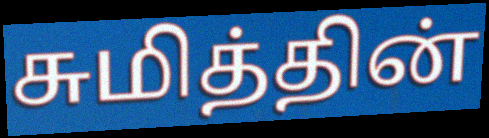
சுமித்தின்